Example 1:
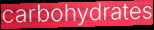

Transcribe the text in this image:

carbohydrates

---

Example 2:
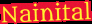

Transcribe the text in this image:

Nainital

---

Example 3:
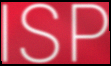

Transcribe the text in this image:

ISP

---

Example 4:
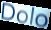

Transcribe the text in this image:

Dolo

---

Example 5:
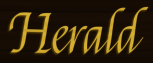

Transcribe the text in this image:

Herald